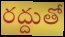
రద్దుతో